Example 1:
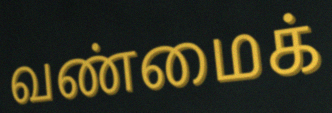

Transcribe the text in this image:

வண்மைக்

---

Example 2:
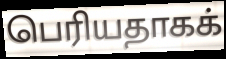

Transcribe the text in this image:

பெரியதாகக்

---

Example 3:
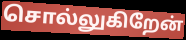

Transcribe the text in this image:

சொல்லுகிறேன்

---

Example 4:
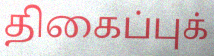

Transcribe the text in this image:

திகைப்புக்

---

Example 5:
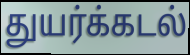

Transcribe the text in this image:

துயர்க்கடல்